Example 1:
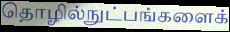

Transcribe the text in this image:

தொழில்நுட்பங்களைக்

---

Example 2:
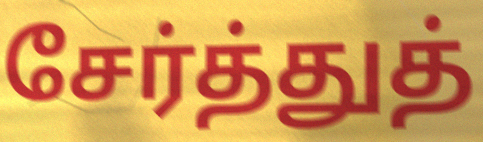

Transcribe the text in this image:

சேர்த்துத்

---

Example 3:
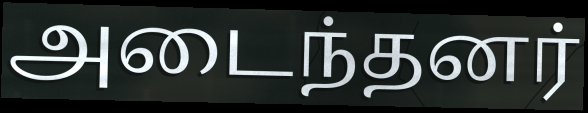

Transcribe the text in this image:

அடைந்தனர்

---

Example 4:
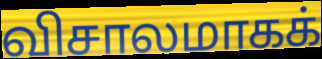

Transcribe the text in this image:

விசாலமாகக்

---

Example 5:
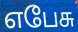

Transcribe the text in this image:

எபேசு